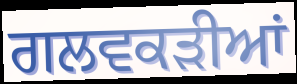
ਗਲਵਕੜੀਆਂ